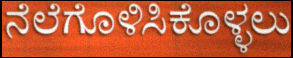
ನೆಲೆಗೊಳಿಸಿಕೊಳ್ಳಲು